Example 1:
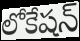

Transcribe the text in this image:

లోకేషన్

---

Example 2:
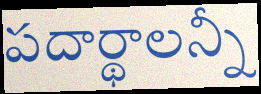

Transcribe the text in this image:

పదార్థాలన్నీ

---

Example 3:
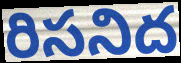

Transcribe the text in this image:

రిసనిద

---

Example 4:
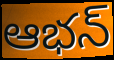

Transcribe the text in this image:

ఆభన్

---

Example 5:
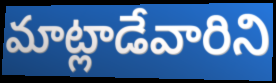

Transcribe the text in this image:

మాట్లాడేవారిని